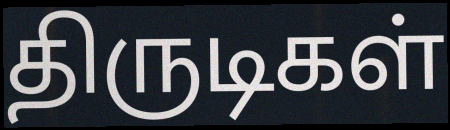
திருடிகள்